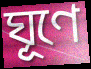
ঘূণে